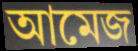
আমেজ